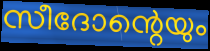
സീദോന്റെയും